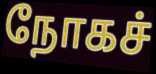
நோகச்